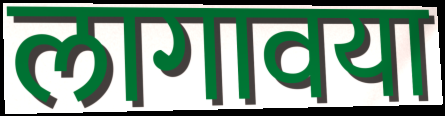
लागावया